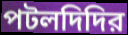
পটলদিদির